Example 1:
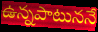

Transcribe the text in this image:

ఉన్నపాటుననే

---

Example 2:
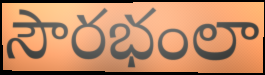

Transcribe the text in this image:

సౌరభంలా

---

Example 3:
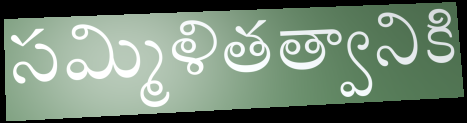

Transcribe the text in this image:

సమ్మిళితత్వానికి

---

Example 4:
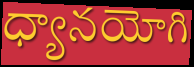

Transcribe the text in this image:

ధ్యానయోగి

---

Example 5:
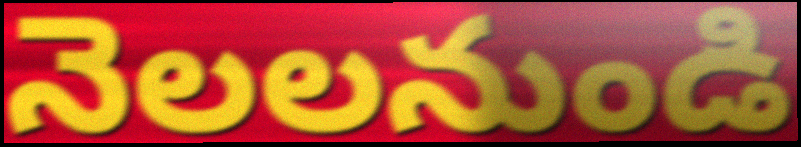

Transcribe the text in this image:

నెలలనుండి